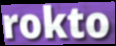
rokto